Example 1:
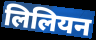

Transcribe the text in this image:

लिलियन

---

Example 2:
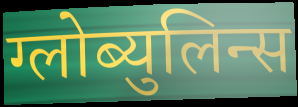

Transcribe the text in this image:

ग्लोब्युलिन्स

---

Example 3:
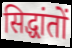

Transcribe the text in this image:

सिद्धांतों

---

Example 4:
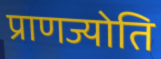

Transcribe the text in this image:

प्राणज्योति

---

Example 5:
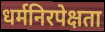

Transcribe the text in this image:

धर्मनिरपेक्षता